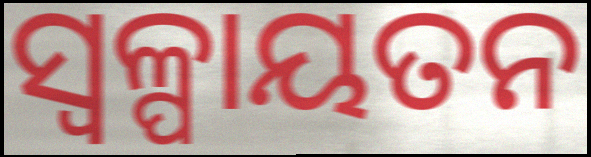
ସ୍ୱଳ୍ପାୟତନ